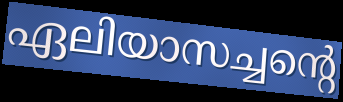
ഏലിയാസച്ചന്റെ